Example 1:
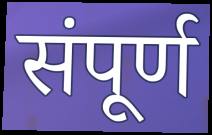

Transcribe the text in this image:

संपूर्ण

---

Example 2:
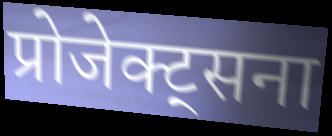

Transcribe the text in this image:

प्रोजेक्ट्सना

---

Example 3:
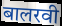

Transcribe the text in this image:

बालरवी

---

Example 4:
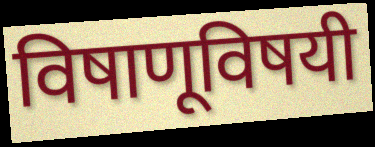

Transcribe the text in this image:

विषाणूविषयी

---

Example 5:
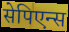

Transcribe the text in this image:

सेपिएन्स